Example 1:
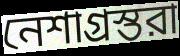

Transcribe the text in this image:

নেশাগ্রস্তরা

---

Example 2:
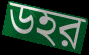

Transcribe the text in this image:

ডহর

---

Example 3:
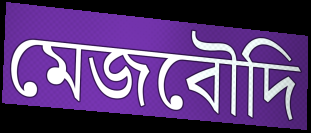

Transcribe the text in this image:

মেজবৌদি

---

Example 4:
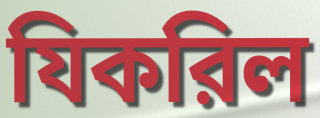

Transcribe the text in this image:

যিকরিল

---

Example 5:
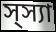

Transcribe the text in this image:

স্স্যা